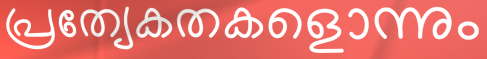
പ്രത്യേകതകളൊന്നും